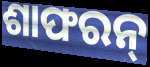
ଶାଫରନ୍